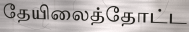
தேயிலைத்தோட்ட